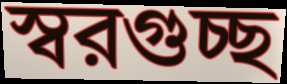
স্বরগুচ্ছ